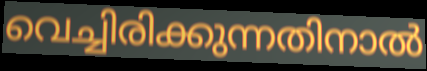
വെച്ചിരിക്കുന്നതിനാൽ